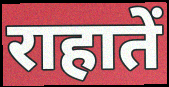
राहातें